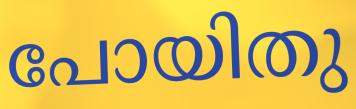
പോയിതു